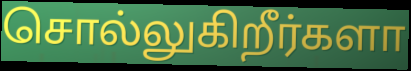
சொல்லுகிறீர்களா